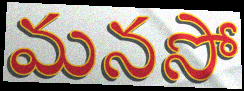
మనసో